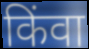
किंवा